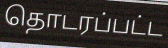
தொடரப்பட்ட